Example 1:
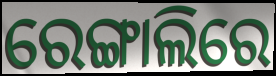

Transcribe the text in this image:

ରେଙ୍ଗାଲିରେ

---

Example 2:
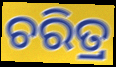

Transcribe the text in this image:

ଚରିତ୍ର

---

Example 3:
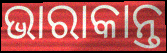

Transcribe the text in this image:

ଭାରାକାନ୍ତ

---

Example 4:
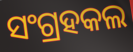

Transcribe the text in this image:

ସଂଗ୍ରହକଲ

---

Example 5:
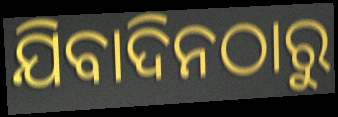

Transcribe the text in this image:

ଯିବାଦିନଠାରୁ